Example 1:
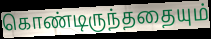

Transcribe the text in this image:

கொண்டிருந்ததையும்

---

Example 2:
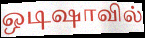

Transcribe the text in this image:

ஒடிஷாவில்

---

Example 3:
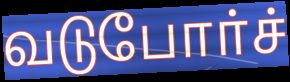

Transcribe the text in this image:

வடுபோர்ச்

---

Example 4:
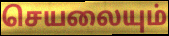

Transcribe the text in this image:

செயலையும்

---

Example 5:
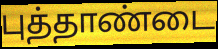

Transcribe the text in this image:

புத்தாண்டை